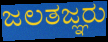
ಜಲತಜ್ಞರು